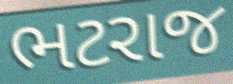
ભટરાજ